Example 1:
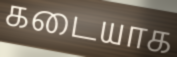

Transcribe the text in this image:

கடையாக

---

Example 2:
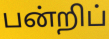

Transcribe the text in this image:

பன்றிப்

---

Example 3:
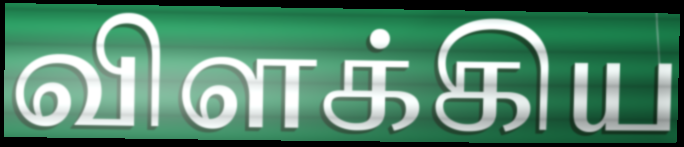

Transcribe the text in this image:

விளக்கிய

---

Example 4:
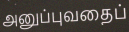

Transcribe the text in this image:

அனுப்புவதைப்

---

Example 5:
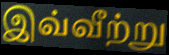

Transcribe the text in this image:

இவ்வீற்று